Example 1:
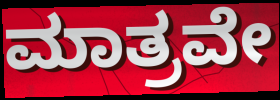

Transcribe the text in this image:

ಮಾತ್ರವೇ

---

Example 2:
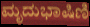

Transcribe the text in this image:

ಮೃದುಭಾಷಿಣಿ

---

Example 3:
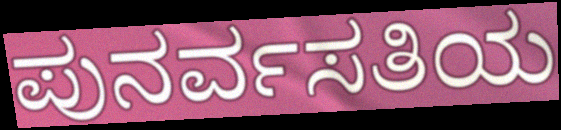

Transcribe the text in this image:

ಪುನರ್ವಸತಿಯ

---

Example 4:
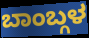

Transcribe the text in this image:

ಬಾಂಬ್ಗಳ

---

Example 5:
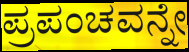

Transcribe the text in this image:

ಪ್ರಪಂಚವನ್ನೇ